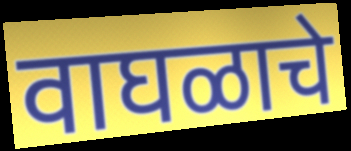
वाघळाचे